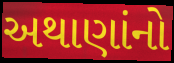
અથાણાંનો